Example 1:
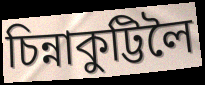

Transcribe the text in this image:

চিন্নাকুট্টিলৈ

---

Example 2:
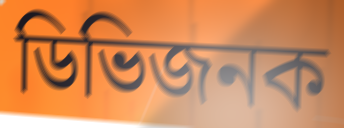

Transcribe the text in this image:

ডিভিজনক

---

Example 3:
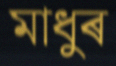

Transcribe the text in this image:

মাধুৰ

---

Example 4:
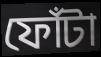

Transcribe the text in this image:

ফোঁটা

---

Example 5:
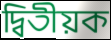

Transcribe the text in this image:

দ্বিতীয়ক